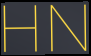
HN